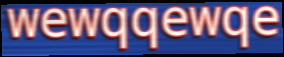
wewqqewqe